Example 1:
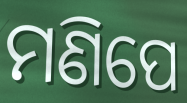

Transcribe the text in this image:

ମଣିପେ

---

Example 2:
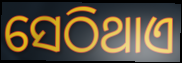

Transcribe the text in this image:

ସେଠିଥାଏ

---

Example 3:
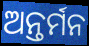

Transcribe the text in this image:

ଅନ୍ତର୍ମନ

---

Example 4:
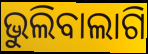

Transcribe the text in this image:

ଭୁଲିବାଲାଗି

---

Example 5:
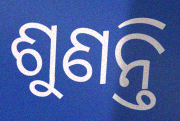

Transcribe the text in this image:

ଶୁଣନ୍ତି